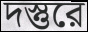
দস্তুরে